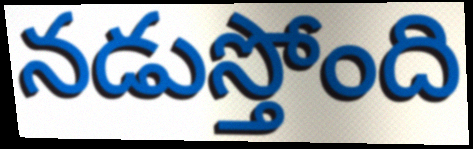
నడుస్తోంది